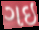
ગઇ